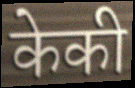
केकी